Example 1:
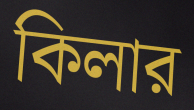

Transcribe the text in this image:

কিলার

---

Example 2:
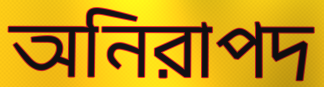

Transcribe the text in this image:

অনিরাপদ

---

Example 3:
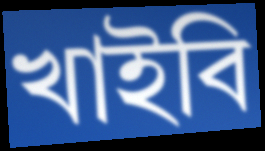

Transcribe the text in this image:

খাইবি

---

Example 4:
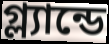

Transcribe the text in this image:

গ্ল্যান্ডে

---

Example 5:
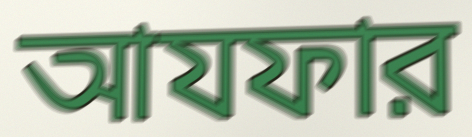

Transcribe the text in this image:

আযফার